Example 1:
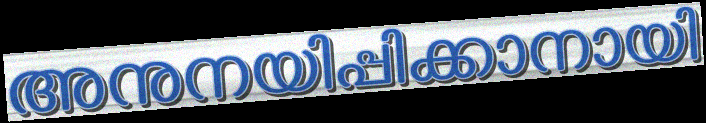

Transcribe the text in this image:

അനുനയിപ്പിക്കാനായി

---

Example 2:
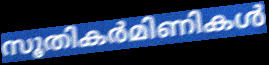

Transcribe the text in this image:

സൂതികർമിണികൾ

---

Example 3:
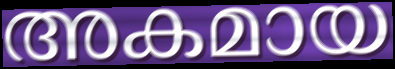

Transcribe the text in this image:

അകമായ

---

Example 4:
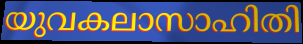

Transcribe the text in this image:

യുവകലാസാഹിതി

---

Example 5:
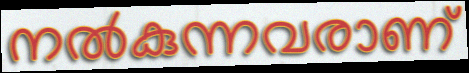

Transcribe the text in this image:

നൽകുന്നവരാണ്